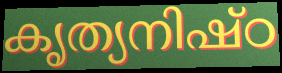
കൃത്യനിഷ്ഠ